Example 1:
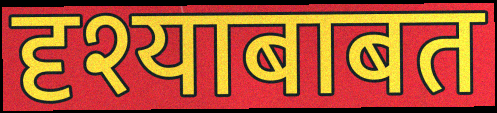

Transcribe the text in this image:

दृश्याबाबत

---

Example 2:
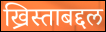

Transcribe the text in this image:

ख्रिस्ताबद्दल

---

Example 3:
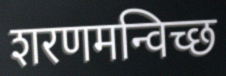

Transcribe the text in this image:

शरणमन्विच्छ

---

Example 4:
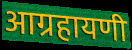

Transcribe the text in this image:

आग्रहायणी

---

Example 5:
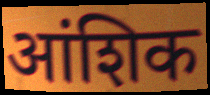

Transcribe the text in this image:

आंशिक